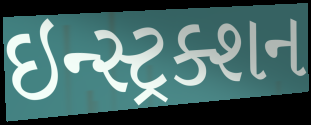
ઇન્સ્ટ્રક્શન